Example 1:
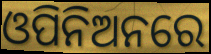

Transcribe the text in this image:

ଓପିନିଅନରେ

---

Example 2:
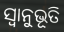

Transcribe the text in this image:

ସ୍ଵାନୁଭୂତି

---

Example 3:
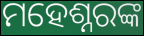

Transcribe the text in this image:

ମହେଶ୍ନରଙ୍କ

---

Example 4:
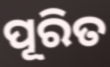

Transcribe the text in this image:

ପୂରିତ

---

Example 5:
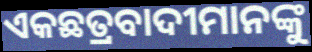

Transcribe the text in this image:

ଏକଛତ୍ରବାଦୀମାନଙ୍କୁ